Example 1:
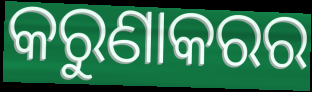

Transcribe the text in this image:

କରୁଣାକରର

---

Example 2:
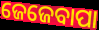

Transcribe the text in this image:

ଜେଜେବାପା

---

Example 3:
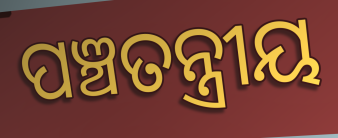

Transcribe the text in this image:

ପଞ୍ଚତନ୍ତ୍ରୀୟ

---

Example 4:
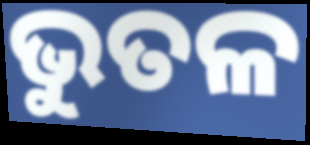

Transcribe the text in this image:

ଭୁତଳ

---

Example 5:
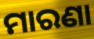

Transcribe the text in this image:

ମାରଣା